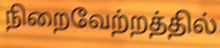
நிறைவேற்றத்தில்